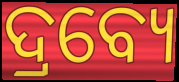
ଦ୍ରବ୍ୟେ